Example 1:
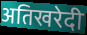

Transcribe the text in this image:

अतिखरेदी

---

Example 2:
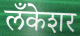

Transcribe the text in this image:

लँकेशर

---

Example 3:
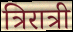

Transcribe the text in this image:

त्रिरात्री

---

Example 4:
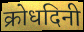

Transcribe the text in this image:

क्रोधदिनी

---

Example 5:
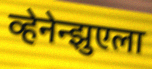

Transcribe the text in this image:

व्हेनेन्झुएला